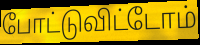
போட்டுவிட்டோம்